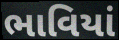
ભાવિયાં